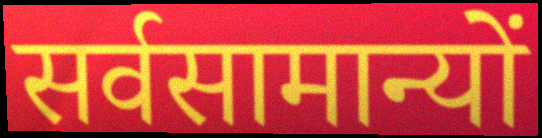
सर्वसामान्यों